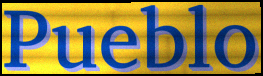
Pueblo